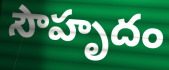
సౌహృదం